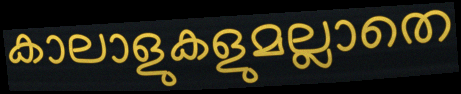
കാലാളുകളുമല്ലാതെ